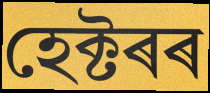
হেক্টৰৰ